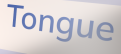
Tongue